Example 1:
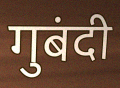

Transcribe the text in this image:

गुबंदी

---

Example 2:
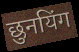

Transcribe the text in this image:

छुनयिंग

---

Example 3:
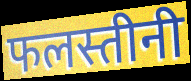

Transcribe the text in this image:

फलस्तीनी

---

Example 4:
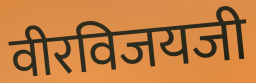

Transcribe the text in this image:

वीरविजयजी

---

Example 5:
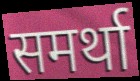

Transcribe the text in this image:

समर्था